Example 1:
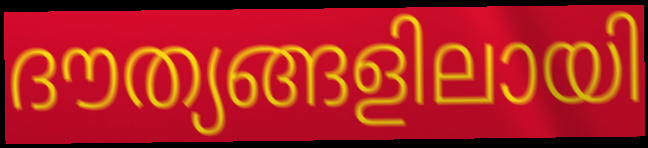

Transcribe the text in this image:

ദൗത്യങ്ങളിലായി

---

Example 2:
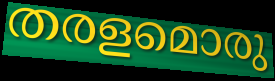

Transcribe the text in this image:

തരളമൊരു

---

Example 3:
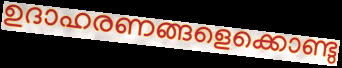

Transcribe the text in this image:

ഉദാഹരണങ്ങളെക്കൊണ്ടു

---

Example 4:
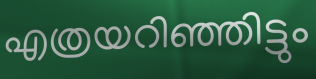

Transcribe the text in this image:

എത്രയറിഞ്ഞിട്ടും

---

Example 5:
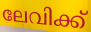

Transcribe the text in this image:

ലേവിക്ക്